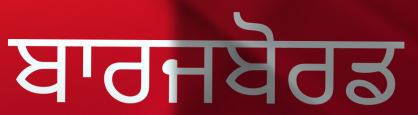
ਬਾਰਜਬੋਰਡ